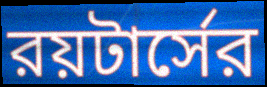
রয়টার্সের